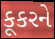
કૂકરને